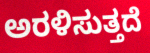
ಅರಳಿಸುತ್ತದೆ